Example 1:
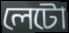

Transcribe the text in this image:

লেটো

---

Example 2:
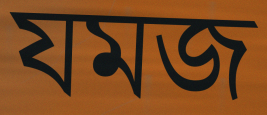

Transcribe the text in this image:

যমজ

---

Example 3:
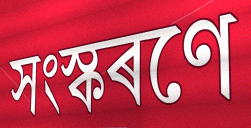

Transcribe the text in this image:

সংস্কৰণে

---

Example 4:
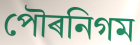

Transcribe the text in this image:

পৌৰনিগম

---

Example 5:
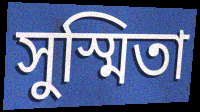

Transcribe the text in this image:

সুস্মিতা